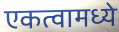
एकत्वामध्ये